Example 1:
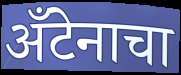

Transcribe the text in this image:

अँटेनाचा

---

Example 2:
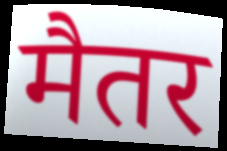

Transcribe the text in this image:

मैतर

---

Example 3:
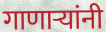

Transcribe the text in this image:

गाणाऱ्यांनी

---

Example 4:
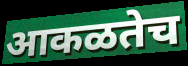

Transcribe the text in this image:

आकळतेच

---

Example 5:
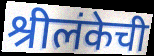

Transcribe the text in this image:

श्रीलंकेची